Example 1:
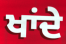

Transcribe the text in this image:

ਖਾਂਦੇ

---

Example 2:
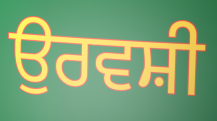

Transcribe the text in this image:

ਉਰਵਸ਼ੀ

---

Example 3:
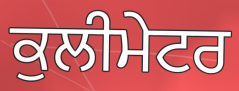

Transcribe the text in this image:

ਕੁਲੀਮੇਟਰ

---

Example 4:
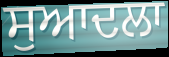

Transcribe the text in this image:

ਸੁਆਦਲਾ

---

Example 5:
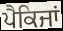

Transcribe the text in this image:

ਪੈਕਿਜਾਂ